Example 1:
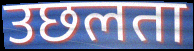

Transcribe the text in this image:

उछलता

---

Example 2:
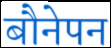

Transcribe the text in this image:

बौनेपन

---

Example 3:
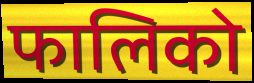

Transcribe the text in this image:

फालिको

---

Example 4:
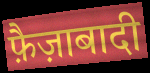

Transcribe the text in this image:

फ़ैज़ाबादी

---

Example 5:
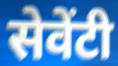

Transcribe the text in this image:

सेवेंटी